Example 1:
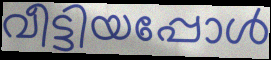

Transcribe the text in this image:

വീട്ടിയപ്പോൾ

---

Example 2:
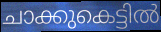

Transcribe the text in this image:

ചാക്കുകെട്ടിൽ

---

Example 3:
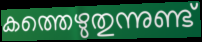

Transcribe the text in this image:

കത്തെഴുതുന്നുണ്ട്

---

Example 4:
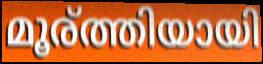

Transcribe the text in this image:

മൂര്ത്തിയായി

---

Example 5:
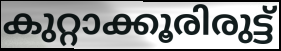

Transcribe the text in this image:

കുറ്റാക്കൂരിരുട്ട്